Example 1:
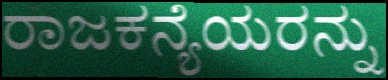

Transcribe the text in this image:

ರಾಜಕನ್ಯೆಯರನ್ನು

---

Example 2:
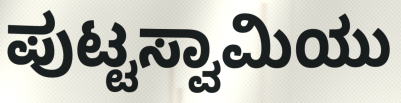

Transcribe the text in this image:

ಪುಟ್ಟಸ್ವಾಮಿಯು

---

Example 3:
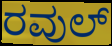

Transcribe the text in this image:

ರವುಲ್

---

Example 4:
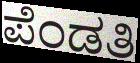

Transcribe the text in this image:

ಪೆಂಡತಿ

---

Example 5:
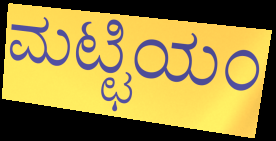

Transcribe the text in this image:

ಮಟ್ಟಿಯಂ